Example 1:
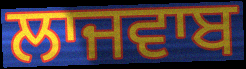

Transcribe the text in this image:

ਲਾਜਵਾਬ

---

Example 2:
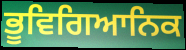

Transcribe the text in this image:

ਭੂਵਿਗਿਆਨਿਕ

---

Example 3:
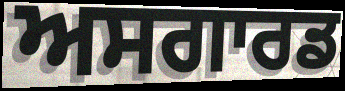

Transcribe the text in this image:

ਅਸਗਾਰਡ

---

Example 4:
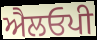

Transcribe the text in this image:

ਐਲਓਪੀ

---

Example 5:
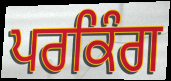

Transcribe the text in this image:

ਪਰਕਿੰਗ